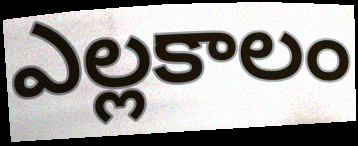
ఎల్లకాలం